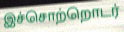
இச்சொற்றொடர்